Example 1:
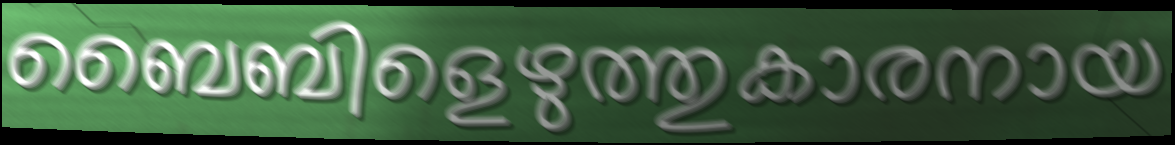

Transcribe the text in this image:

ബൈബിളെഴുത്തുകാരനായ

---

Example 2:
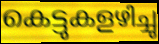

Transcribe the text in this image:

കെട്ടുകളഴിച്ചു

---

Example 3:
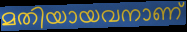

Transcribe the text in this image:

മതിയായവനാണ്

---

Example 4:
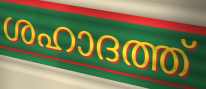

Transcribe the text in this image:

ശഹാദത്ത്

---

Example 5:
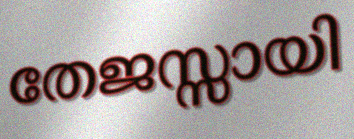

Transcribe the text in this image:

തേജസ്സായി